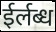
ईर्लब्ध